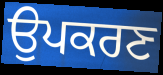
ਉਪਕਰਣ